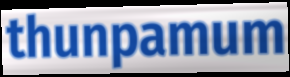
thunpamum